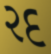
રદ